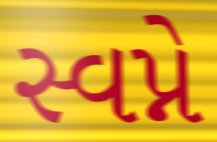
સ્વપ્ને